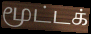
மூட்டக்